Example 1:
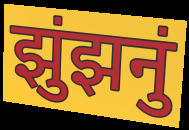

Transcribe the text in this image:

झुंझनुं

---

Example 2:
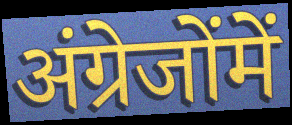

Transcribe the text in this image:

अंग्रेजोंमें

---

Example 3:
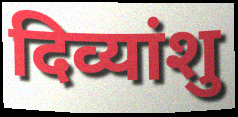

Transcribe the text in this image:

दिव्यांशु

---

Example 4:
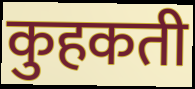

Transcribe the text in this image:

कुहकती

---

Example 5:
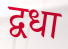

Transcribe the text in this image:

द्वधा